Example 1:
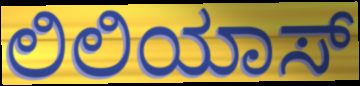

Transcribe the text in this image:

ಲಿಲಿಯಾಸ್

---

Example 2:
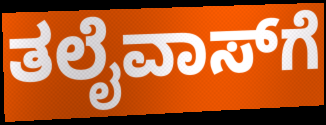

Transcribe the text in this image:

ತಲೈವಾಸ್‌ಗೆ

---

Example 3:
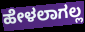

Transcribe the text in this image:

ಹೇಳಲಾಗಲ್ಲ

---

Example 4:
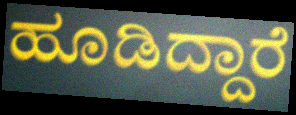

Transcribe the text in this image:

ಹೂಡಿದ್ದಾರೆ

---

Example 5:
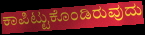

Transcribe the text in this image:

ಕಾಪಿಟ್ಟುಕೊಂಡಿರುವುದು